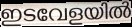
ഇടവേളയിൽ